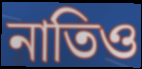
নাতিও